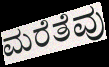
ಮರೆತೆವು